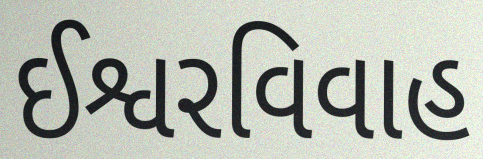
ઈશ્વરવિવાહ